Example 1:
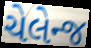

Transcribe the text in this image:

ચેલેન્જ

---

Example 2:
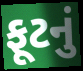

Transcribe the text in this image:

ફૂટનું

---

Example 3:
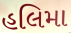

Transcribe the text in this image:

હલિમા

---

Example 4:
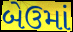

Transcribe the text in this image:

બેઉમાં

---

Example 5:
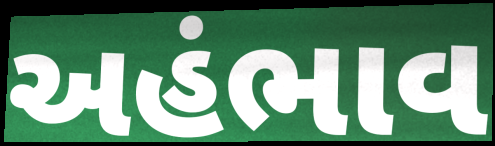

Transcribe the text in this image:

અહંભાવ